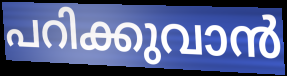
പറിക്കുവാൻ